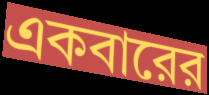
একবারের